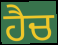
ਹੈਚ